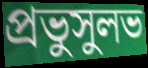
প্রভুসুলভ